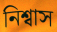
নিশ্বাস